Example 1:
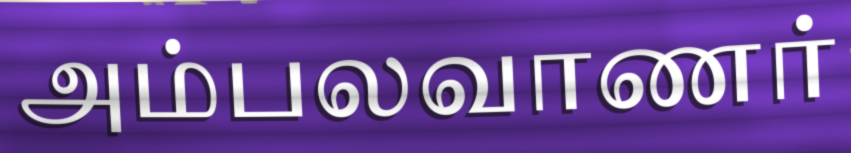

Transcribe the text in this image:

அம்பலவாணர்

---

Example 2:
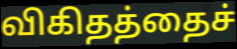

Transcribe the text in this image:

விகிதத்தைச்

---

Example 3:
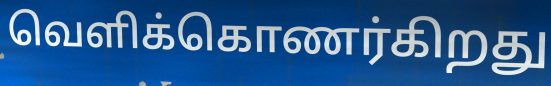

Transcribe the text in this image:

வெளிக்கொணர்கிறது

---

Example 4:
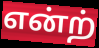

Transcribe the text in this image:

என்ற்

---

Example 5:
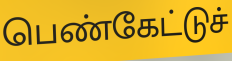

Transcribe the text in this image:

பெண்கேட்டுச்